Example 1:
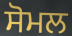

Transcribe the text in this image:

ਸੋਮਲ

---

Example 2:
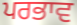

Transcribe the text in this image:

ਪਰਭਾਵ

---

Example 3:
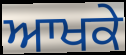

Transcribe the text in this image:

ਆਖਕੇ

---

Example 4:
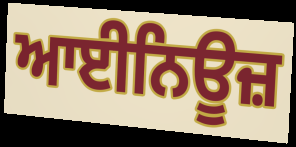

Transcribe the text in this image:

ਆਈਨਿਊਜ਼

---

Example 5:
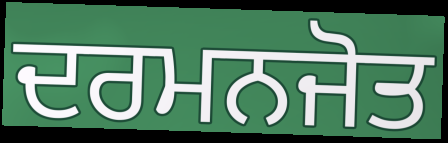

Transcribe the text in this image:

ਦਰਮਨਜੋਤ